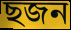
ছজন